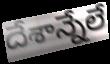
దేశాన్నేలే